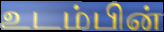
உடம்பின்